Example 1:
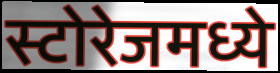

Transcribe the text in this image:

स्टोरेजमध्ये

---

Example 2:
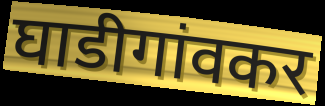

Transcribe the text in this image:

घाडीगांवकर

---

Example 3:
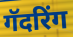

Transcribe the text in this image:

गॅदरिंग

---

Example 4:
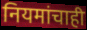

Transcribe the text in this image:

नियमांचाही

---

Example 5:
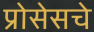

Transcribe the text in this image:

प्रोसेसचे